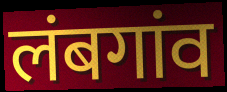
लंबगांव